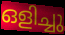
ഒളിച്ചു